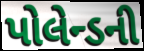
પોલેન્ડની